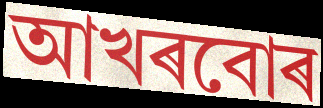
আখৰবোৰ